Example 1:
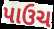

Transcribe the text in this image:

પાઉચ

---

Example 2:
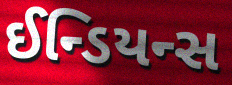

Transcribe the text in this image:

ઈન્ડિયન્સ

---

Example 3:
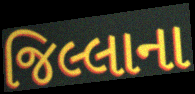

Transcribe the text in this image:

જિલ્લાના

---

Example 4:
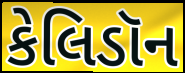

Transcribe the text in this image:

કેલિડૉન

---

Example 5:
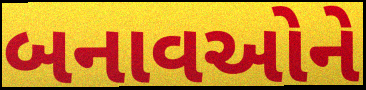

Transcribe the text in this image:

બનાવઓને